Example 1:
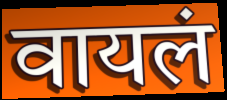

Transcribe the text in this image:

वायलं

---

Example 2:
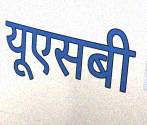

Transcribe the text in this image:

यूएसबी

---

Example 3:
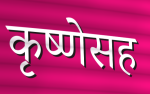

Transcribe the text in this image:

कृष्णेसह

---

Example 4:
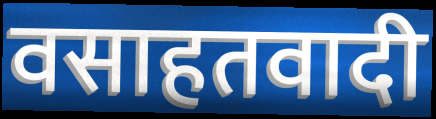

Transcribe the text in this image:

वसाहतवादी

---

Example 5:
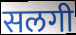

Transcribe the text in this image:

सलगी